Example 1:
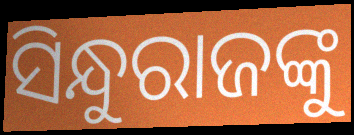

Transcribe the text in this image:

ସିନ୍ଧୁରାଜଙ୍କୁ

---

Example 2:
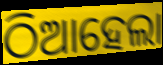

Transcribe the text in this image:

ଠିଆହେଲା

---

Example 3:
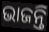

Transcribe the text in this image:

ଭାଜନ୍ତି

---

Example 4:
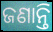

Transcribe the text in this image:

ଜଣାନ୍ତି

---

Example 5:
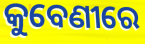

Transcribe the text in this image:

କୁବେଣୀରେ